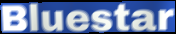
Bluestar